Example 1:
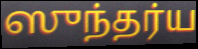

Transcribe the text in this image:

ஸுந்தர்ய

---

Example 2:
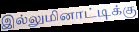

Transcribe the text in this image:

இல்லுமினாட்டிக்கு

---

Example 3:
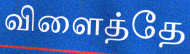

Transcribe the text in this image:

விளைத்தே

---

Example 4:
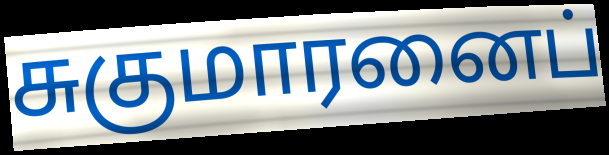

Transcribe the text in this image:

சுகுமாரனைப்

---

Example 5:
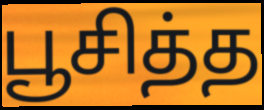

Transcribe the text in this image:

பூசித்த